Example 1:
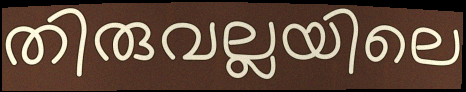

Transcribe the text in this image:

തിരുവല്ലയിലെ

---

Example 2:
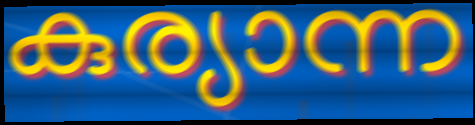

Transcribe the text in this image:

കുര്യാന്ന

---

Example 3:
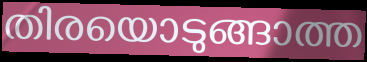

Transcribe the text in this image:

തിരയൊടുങ്ങാത്ത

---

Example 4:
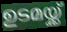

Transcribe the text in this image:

ഉടമയ്ക്ക്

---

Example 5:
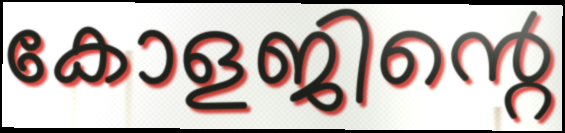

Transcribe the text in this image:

കോളജിന്റെ